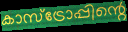
കാസ്ട്രോപ്പിന്റെ